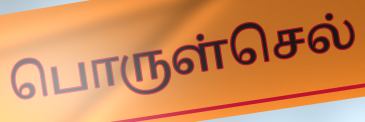
பொருள்செல்